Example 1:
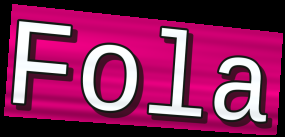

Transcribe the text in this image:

Fola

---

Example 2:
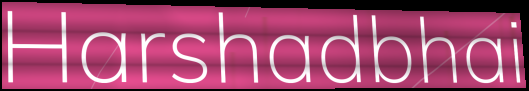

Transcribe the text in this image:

Harshadbhai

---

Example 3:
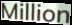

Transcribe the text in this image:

Million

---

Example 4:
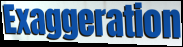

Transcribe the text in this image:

Exaggeration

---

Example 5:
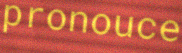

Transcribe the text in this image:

pronouce